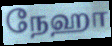
நேஹா